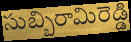
సుబ్బిరామిరెడ్డి